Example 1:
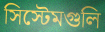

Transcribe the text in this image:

সিস্টেমগুলি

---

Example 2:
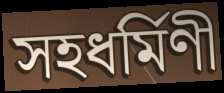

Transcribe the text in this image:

সহধর্মিণী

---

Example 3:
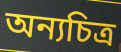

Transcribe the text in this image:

অন্যচিত্র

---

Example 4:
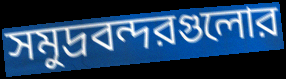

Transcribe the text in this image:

সমুদ্রবন্দরগুলোর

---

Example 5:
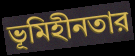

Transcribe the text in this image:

ভূমিহীনতার